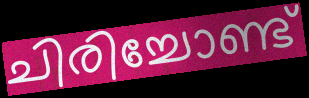
ചിരിച്ചോണ്ട്